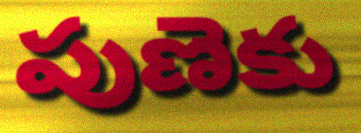
పుణెకు